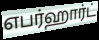
எபர்ஹார்ட்